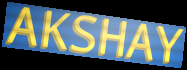
AKSHAY